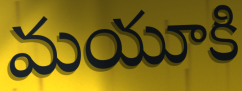
మయూకి